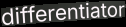
differentiator